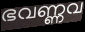
ഭവണ്ണവ